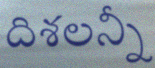
దిశలన్నీ